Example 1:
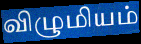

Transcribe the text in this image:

விழுமியம்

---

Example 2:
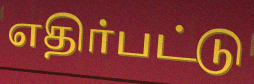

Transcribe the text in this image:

எதிர்பட்டு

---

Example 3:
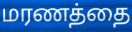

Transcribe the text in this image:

மரணத்தை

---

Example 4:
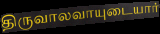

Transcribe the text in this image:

திருவாலவாயுடையார்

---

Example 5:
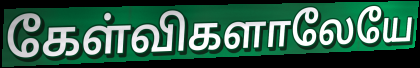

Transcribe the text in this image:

கேள்விகளாலேயே